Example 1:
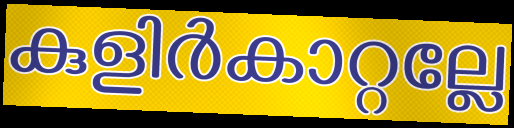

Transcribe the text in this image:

കുളിർകാറ്റല്ലേ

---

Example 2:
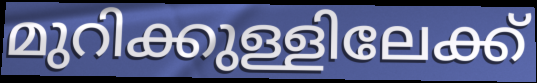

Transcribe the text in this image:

മുറിക്കുള്ളിലേക്ക്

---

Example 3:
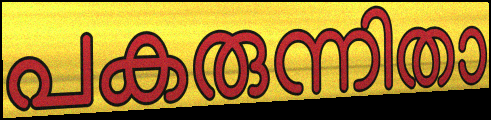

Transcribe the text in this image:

പകരുന്നിതാ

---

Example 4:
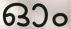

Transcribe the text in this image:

ഓം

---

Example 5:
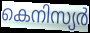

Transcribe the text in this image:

കെനിസ്യർ